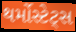
થર્મોસ્ટેટ્સ